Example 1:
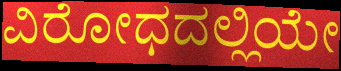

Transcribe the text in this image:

ವಿರೋಧದಲ್ಲಿಯೇ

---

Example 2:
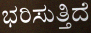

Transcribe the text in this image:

ಭರಿಸುತ್ತಿದೆ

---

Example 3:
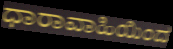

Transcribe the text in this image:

ಧಾರಾವಾಹಿಯಿಂದ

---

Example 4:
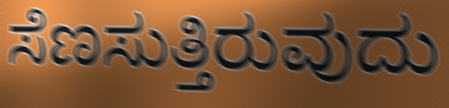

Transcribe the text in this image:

ಸೆಣಸುತ್ತಿರುವುದು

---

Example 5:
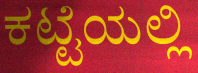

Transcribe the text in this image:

ಕಟ್ಟೆಯಲ್ಲಿ